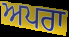
ਅਪਰਾ